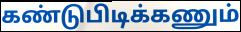
கண்டுபிடிக்கணும்